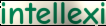
intellexi